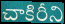
చాకిరీని